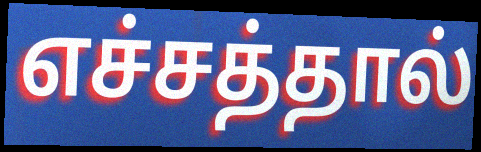
எச்சத்தால்